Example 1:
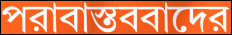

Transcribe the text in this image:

পরাবাস্তববাদের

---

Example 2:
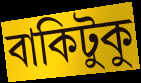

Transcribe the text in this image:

বাকিটুকু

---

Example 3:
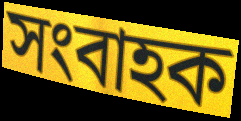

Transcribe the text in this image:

সংবাহক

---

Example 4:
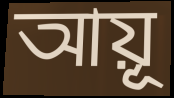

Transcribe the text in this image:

আয়ূ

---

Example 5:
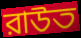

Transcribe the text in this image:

রাউত